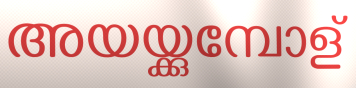
അയയ്ക്കുമ്പോള്